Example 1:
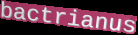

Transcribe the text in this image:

bactrianus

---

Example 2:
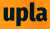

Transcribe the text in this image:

upla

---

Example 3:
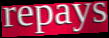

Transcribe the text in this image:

repays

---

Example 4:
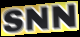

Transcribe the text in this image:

SNN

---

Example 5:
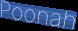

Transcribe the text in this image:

Poonah